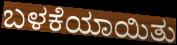
ಬಳಕೆಯಾಯಿತು